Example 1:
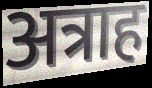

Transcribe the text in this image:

अत्राह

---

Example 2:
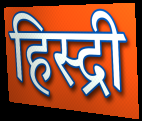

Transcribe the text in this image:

हिस्द्री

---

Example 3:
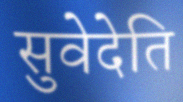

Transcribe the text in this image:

सुवेदेति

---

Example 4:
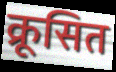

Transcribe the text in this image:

क्रूसित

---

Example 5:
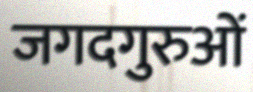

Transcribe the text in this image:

जगदगुरुओं